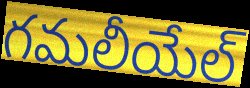
గమలీయేల్